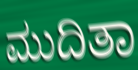
ಮುದಿತಾ